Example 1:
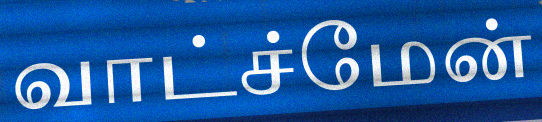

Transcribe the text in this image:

வாட்ச்மேன்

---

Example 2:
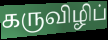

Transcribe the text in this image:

கருவிழிப்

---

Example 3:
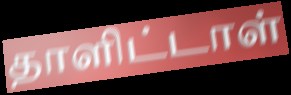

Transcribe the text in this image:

தாளிட்டாள்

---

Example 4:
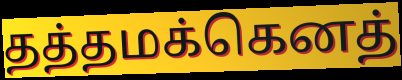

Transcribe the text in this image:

தத்தமக்கெனத்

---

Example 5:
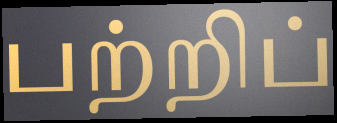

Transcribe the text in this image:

பற்றிப்